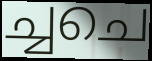
ച്ചചെ